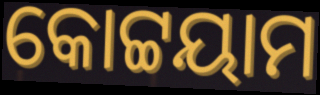
କୋଟ୍ଟୟାମ